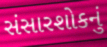
સંસારશોકનું